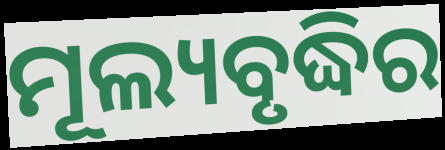
ମୂଲ୍ୟବୃଦ୍ଧିର